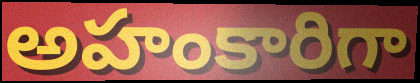
అహంకారిగా